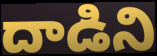
దాడిని